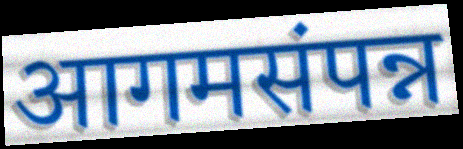
आगमसंपन्न